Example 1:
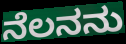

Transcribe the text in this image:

ನೆಲನನು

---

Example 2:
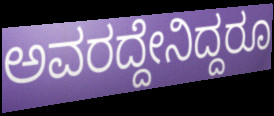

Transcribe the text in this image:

ಅವರದ್ದೇನಿದ್ದರೂ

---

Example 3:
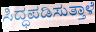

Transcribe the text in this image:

ಸಿದ್ಧಪಡಿಸುತ್ತಾಳೆ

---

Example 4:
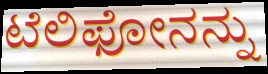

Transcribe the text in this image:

ಟೆಲಿಫೋನನ್ನು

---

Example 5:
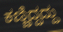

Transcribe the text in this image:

ಕಣ್ಣಿದ್ದದ್ದು